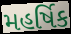
મહર્ષિક